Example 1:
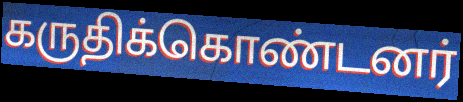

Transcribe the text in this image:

கருதிக்கொண்டனர்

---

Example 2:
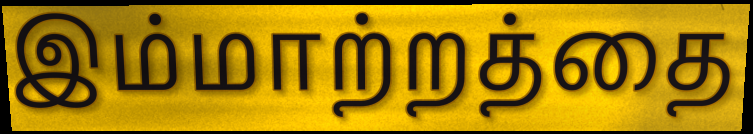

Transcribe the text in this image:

இம்மாற்றத்தை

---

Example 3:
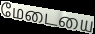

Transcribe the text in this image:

மேடையை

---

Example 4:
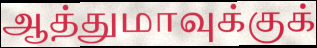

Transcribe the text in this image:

ஆத்துமாவுக்குக்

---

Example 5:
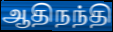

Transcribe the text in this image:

ஆதிநந்தி